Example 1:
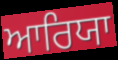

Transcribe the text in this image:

ਆਰਿਯਾ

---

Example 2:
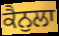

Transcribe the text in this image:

ਕੈਨੁਲਾ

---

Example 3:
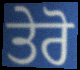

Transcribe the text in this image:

ਤੇਰੋ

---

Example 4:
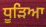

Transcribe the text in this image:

ਧੂੜਿਆ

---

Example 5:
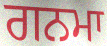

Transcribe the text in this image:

ਗਨਮਾ